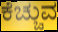
ಕೆಚ್ಚುವ